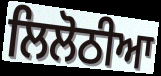
ਲਿਲੋਠੀਆ